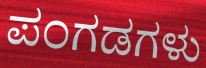
ಪಂಗಡಗಳು